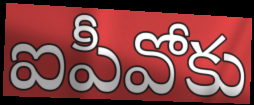
ఐపీవోకు